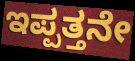
ಇಪ್ಪತ್ತನೇ